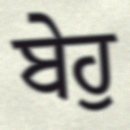
ਬੇਹੁ